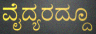
ವೈದ್ಯರದ್ದೂ